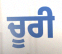
ਚੂਰੀ